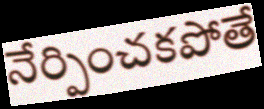
నేర్పించకపోతే